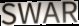
SWAR